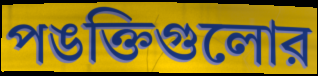
পঙক্তিগুলোর